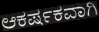
ಆಕರ್ಷಕವಾಗಿ